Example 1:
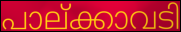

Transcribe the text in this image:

പാല്ക്കാവടി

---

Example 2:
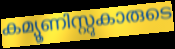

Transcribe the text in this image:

കമ്യൂണിസ്റ്റുകാരുടെ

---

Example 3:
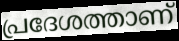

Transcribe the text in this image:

പ്രദേശത്താണ്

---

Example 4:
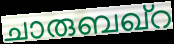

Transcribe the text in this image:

ചാരുബഖ്റ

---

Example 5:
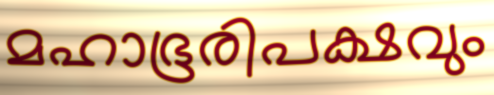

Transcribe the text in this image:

മഹാഭൂരിപക്ഷവും